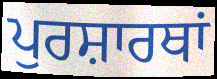
ਪੁਰਸ਼ਾਰਥਾਂ